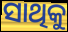
ସାଥିକୁ